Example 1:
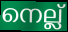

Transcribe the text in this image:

നെല്ല്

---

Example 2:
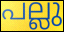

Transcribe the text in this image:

പല്ലു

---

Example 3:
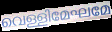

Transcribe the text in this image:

വെള്ളിമേഘമേ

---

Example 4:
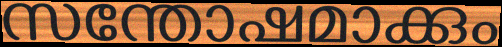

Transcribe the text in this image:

സന്തോഷമാക്കും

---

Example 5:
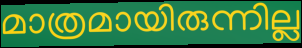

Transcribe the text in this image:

മാത്രമായിരുന്നില്ല